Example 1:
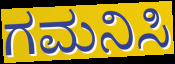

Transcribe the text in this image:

ಗಮನಿಸಿ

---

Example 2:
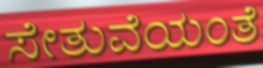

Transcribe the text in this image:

ಸೇತುವೆಯಂತೆ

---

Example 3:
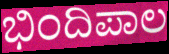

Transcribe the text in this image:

ಭಿಂದಿಪಾಲ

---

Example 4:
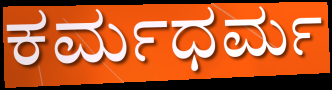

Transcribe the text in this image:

ಕರ್ಮಧರ್ಮ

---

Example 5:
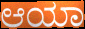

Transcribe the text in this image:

ಆಯಾ